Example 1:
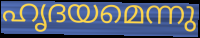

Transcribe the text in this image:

ഹൃദയമെന്നു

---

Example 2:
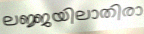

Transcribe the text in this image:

ലജ്ജയിലാതിരാ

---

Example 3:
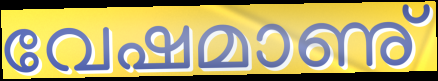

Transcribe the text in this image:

വേഷമാണു്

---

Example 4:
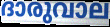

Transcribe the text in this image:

ദാരുവാല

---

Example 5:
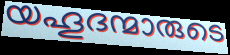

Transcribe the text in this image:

യഹൂദന്മാരുടെ